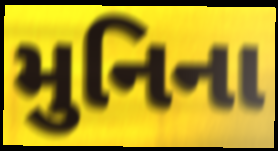
મુનિના